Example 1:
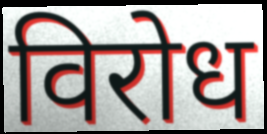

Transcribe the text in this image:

विरोध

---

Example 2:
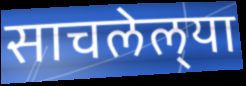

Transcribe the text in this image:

साचलेल्या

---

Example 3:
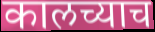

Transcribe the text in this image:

कालच्याच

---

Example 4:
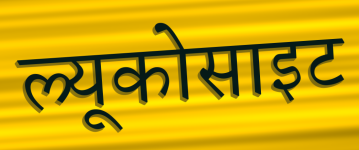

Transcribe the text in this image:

ल्यूकोसाइट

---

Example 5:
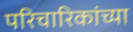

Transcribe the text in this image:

परिचारिकांच्या